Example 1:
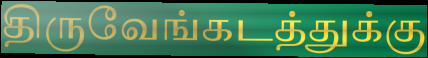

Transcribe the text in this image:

திருவேங்கடத்துக்கு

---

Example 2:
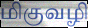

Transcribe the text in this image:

மிகுவழி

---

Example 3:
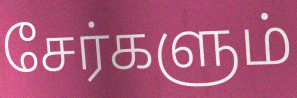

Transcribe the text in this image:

சேர்களும்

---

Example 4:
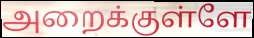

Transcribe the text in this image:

அறைக்குள்ளே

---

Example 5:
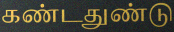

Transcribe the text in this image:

கண்டதுண்டு